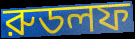
রুডলফ